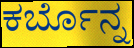
ಕರ್ಬೊನ್ನ